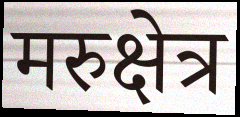
मरुक्षेत्र